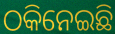
ଠକିନେଇଛି